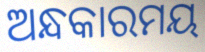
ଅନ୍ଧକାରମୟ